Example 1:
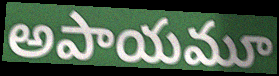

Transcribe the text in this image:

అపాయమూ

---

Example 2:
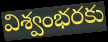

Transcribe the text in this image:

విశ్వంభరకు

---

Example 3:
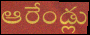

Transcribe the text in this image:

ఆరేండ్లు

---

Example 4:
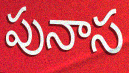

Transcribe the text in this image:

పునాస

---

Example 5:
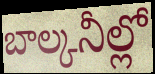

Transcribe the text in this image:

బాల్కనీల్లో